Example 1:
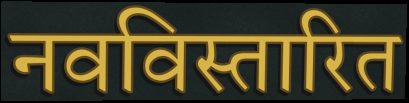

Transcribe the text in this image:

नवविस्तारित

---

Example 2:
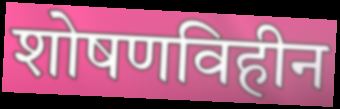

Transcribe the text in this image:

शोषणविहीन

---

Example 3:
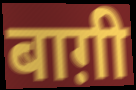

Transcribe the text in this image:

बाग़ी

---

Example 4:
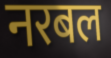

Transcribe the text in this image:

नरबल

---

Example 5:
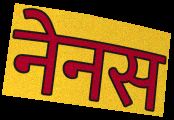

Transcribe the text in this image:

नेनस